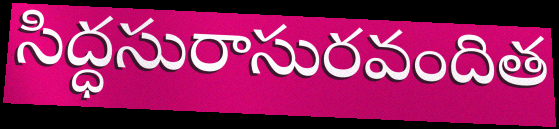
సిద్ధసురాసురవందిత